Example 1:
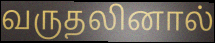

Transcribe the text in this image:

வருதலினால்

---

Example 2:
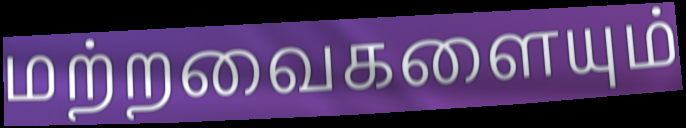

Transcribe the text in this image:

மற்றவைகளையும்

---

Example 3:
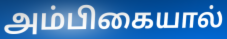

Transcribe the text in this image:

அம்பிகையால்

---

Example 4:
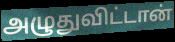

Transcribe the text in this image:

அழுதுவிட்டான்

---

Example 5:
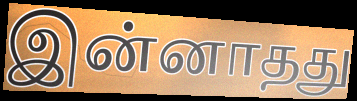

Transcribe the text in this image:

இன்னாதது